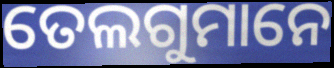
ତେଲଗୁମାନେ